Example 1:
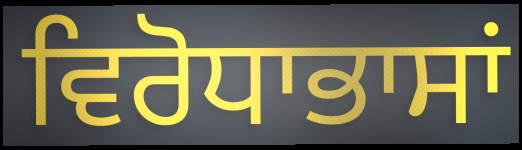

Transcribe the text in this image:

ਵਿਰੋਧਾਭਾਸਾਂ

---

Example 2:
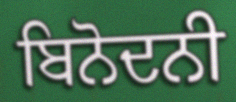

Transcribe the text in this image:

ਬਿਨੋਦਨੀ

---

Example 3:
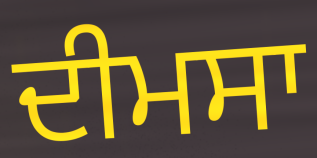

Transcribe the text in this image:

ਦੀਮਸਾ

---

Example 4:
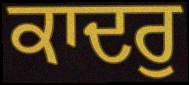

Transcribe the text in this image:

ਕਾਦਰੁ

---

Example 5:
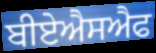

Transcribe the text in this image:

ਬੀਏਐਸਐਫ